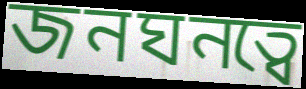
জনঘনত্বে